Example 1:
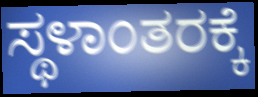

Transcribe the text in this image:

ಸ್ಥಳಾಂತರಕ್ಕೆ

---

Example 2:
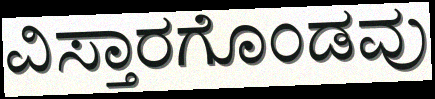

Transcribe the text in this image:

ವಿಸ್ತಾರಗೊಂಡವು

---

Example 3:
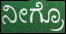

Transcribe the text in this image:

ನೀಗ್ರೊ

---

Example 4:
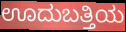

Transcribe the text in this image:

ಊದುಬತ್ತಿಯ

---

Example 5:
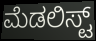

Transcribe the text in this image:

ಮೆಡಲಿಸ್ಟ್